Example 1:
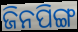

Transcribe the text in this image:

ଜିନପିଙ୍ଗ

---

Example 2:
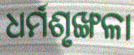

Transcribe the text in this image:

ଧର୍ମଶୃଙ୍ଖଳା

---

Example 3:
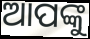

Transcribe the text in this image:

ଆପଙ୍କୁ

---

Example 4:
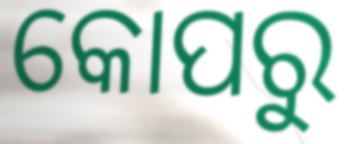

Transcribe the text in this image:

କୋପରୁ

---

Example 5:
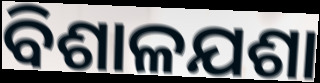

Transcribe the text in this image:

ବିଶାଳଯଶା